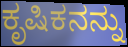
ಕೃಷಿಕನನ್ನು